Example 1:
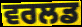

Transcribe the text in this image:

ਵਰਲਡ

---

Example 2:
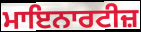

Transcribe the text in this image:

ਮਾਇਨਾਰਟੀਜ਼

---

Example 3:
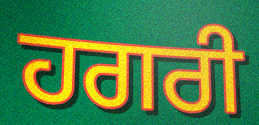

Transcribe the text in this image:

ਹਗਰੀ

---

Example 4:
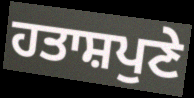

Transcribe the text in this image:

ਹਤਾਸ਼ਪੁਣੇ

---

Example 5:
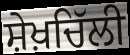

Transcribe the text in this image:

ਸ਼ੇਖ਼ਚਿੱਲੀ